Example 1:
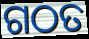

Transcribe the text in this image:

ଗଠତ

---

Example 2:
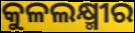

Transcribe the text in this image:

କୁଳଲକ୍ଷ୍ମୀର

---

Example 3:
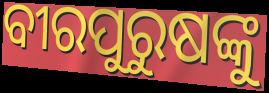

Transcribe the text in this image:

ବୀରପୁରୁଷଙ୍କୁ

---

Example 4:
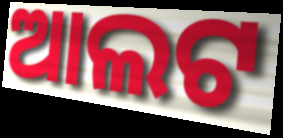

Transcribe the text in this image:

ଆଲଟ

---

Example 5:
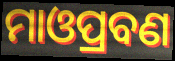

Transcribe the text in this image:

ମାଓପ୍ରବଣ